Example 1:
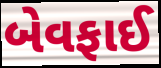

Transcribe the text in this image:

બેવફાઈ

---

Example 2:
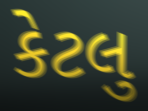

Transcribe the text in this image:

કેટલુ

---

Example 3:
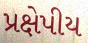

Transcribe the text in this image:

પ્રક્ષેપીય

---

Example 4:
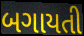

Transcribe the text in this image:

બગાયતી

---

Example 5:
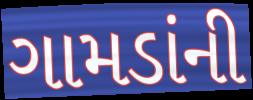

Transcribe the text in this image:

ગામડાંની